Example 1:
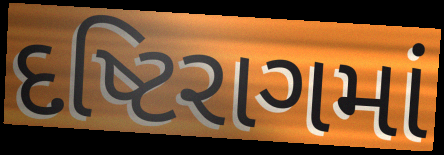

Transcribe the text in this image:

દષ્ટિરાગમાં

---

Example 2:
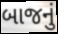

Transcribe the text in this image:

બાજનું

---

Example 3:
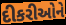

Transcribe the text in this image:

દીકરીઓને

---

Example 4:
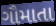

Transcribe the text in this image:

ગૌમાતા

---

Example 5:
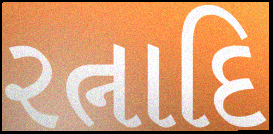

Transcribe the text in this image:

રત્નાદિ